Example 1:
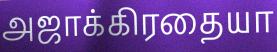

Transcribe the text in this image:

அஜாக்கிரதையா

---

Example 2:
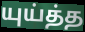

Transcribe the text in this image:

யுய்த்த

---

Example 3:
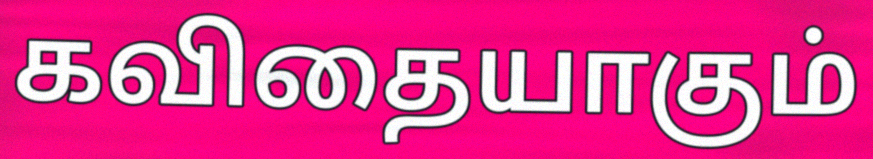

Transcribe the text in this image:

கவிதையாகும்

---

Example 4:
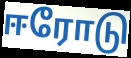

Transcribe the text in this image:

ஈரோடு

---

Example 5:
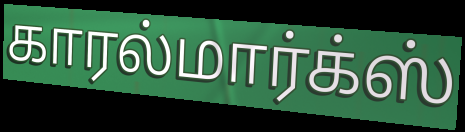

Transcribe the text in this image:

காரல்மார்க்ஸ்